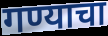
गण्याचा